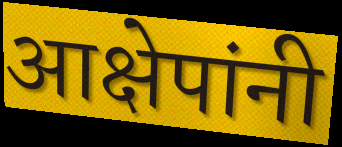
आक्षेपांनी